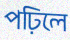
পঢ়িলে